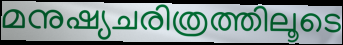
മനുഷ്യചരിത്രത്തിലൂടെ